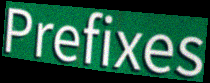
Prefixes